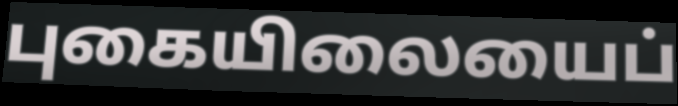
புகையிலையைப்